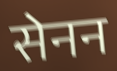
सेनन